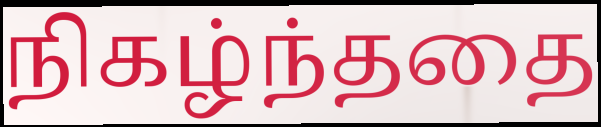
நிகழ்ந்ததை